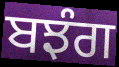
ਬਝੰਗ